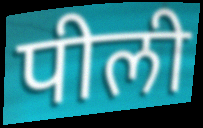
पीली